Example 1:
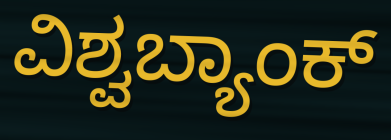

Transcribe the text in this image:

ವಿಶ್ವಬ್ಯಾಂಕ್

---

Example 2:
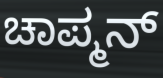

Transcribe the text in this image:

ಚಾಪ್ಮನ್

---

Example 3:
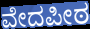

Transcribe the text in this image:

ವೇದಪೀಠ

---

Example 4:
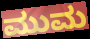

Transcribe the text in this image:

ಮುಮ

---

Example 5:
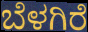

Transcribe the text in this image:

ಬೆಳಗಿರೆ